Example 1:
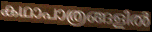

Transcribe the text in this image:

കഥാപാത്രങ്ങളിൽ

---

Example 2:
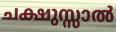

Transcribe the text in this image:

ചക്ഷുസ്സാൽ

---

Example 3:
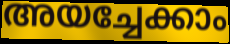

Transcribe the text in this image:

അയച്ചേക്കാം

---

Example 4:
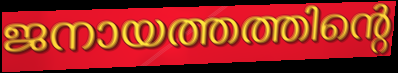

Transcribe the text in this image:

ജനായത്തത്തിന്റെ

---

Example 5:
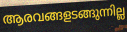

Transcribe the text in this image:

ആരവങ്ങളടങ്ങുന്നില്ല